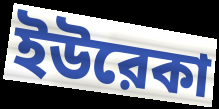
ইউরেকা